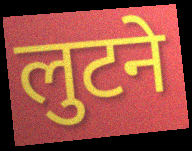
लुटने